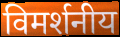
विमर्शनीय